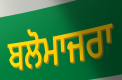
ਬਲੋਮਾਜਰਾ